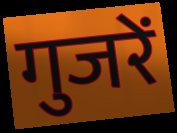
गुजरें